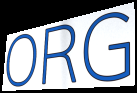
ORG